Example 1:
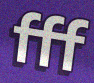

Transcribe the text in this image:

fff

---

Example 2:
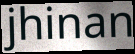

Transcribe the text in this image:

jhinan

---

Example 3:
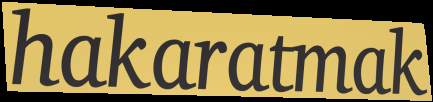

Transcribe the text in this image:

hakaratmak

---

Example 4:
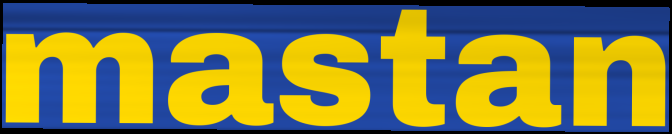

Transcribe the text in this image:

mastan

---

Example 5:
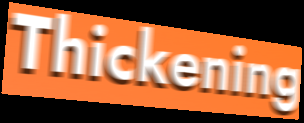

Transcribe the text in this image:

Thickening